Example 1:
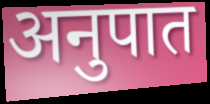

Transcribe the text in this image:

अनुपात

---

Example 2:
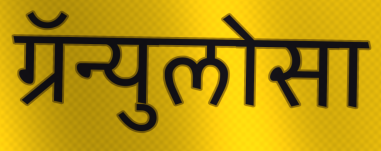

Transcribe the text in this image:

ग्रॅन्युलोसा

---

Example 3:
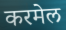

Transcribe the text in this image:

करमेल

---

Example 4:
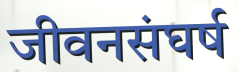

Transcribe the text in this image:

जीवनसंघर्ष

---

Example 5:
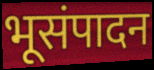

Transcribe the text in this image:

भूसंपादन